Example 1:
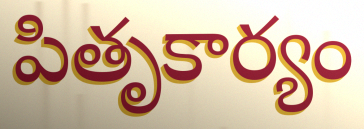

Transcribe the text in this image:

పితృకార్యం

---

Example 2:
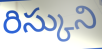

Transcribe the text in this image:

రిస్కుని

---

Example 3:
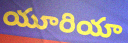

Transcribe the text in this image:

యూరియా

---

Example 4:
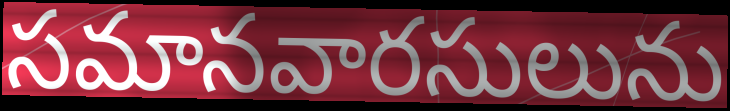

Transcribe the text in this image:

సమానవారసులును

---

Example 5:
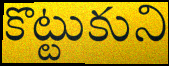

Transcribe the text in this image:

కొట్టుకుని